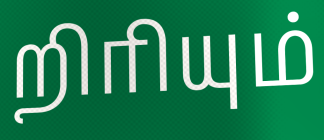
றிரியும்